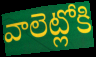
వాలెట్లోకి